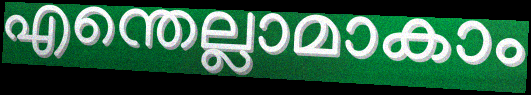
എന്തെല്ലാമാകാം